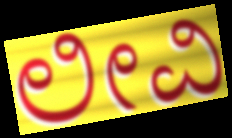
ಲೀವಿ